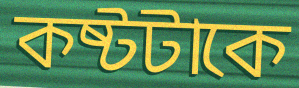
কষ্টটাকে